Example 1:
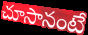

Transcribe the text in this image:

చూసానంటే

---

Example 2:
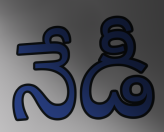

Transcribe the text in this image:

నేడీ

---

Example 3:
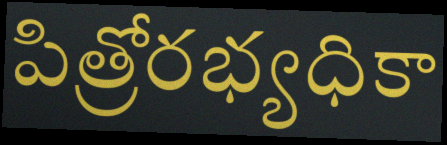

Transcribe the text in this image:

పిత్రోరభ్యధికా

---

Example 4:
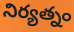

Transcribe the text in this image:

నిర్యత్నం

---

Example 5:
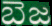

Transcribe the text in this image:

బెజ